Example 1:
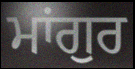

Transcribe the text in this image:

ਮਾਂਗੁਰ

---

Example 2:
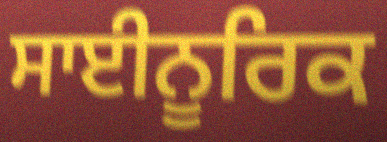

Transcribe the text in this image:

ਸਾਈਨੂਰਿਕ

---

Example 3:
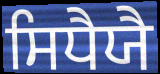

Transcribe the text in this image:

ਸਿਧੈਯੈ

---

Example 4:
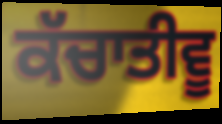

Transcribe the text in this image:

ਕੱਚਾਤੀਵੂ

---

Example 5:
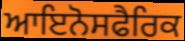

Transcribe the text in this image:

ਆਇਨੋਸਫੈਰਿਕ